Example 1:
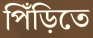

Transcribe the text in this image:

পিঁড়িতে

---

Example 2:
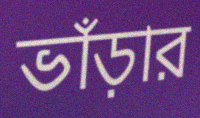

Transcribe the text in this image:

ভাঁড়ার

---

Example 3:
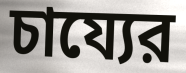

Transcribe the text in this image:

চায্যের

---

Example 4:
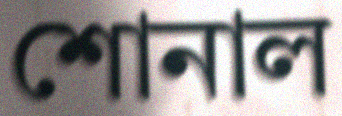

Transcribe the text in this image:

শোনাল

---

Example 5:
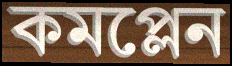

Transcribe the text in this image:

কমপ্লেন